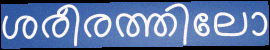
ശരീരത്തിലോ